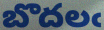
బొదలఁ